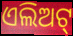
ଏଲିଅଟ୍